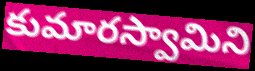
కుమారస్వామిని